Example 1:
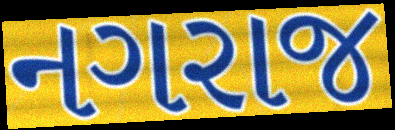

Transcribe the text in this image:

નગરાજ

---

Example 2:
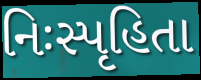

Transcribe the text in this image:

નિઃસ્પૃહિતા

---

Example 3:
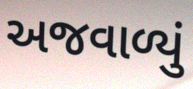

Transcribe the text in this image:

અજવાળ્યું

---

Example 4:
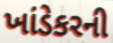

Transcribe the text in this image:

ખાંડેકરની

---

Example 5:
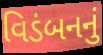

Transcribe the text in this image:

વિડંબનનું